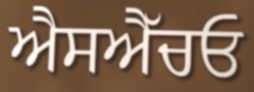
ਐਸਐੱਚਓ